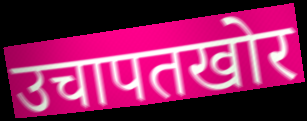
उचापतखोर